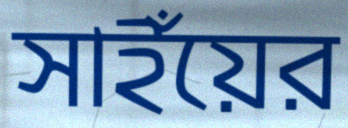
সাইঁয়ের